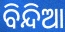
ବିନ୍ଦିଆ